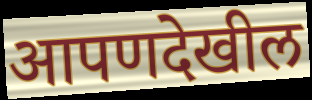
आपणदेखील